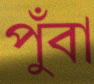
পুঁবা